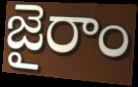
జైరాం